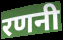
रणनी